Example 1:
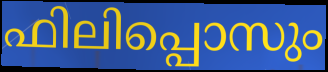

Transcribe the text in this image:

ഫിലിപ്പൊസും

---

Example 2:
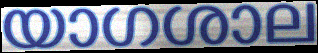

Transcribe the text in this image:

യാഗശാല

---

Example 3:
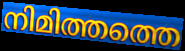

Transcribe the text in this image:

നിമിത്തത്തെ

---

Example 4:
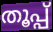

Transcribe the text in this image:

തൂപ്പ്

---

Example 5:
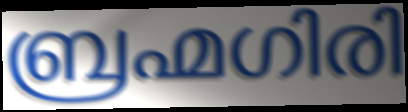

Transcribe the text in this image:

ബ്രഹ്മഗിരി